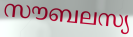
സൗബലസ്യ